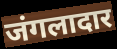
जंगलादार